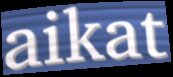
aikat